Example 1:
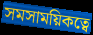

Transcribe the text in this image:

সমসাময়িকত্বে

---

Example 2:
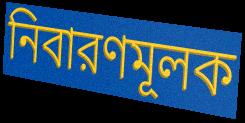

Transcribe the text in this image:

নিবারণমূলক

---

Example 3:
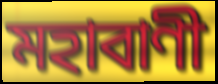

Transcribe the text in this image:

মহাবাণী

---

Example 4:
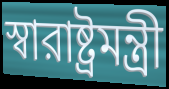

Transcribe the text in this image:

স্বারাষ্ট্রমন্ত্রী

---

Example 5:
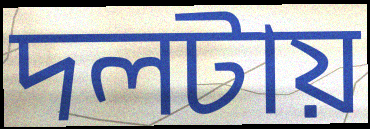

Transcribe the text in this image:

দলটায়